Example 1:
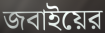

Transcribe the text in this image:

জবাইয়ের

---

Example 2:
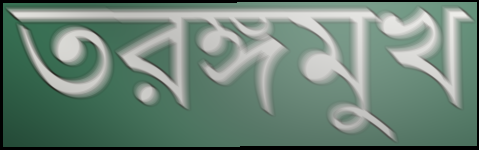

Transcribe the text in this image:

তরঙ্গমুখ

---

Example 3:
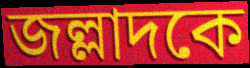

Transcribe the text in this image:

জল্লাদকে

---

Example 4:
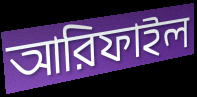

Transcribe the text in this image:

আরিফাইল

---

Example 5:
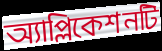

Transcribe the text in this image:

অ্যাপ্লিকেশনটি